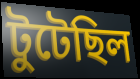
টুটেছিল